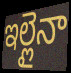
ఇల్లైనా